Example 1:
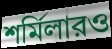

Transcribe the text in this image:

শর্মিলারও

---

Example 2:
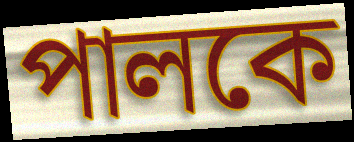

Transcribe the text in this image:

পালকে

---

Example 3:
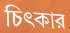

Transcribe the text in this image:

চিৎকার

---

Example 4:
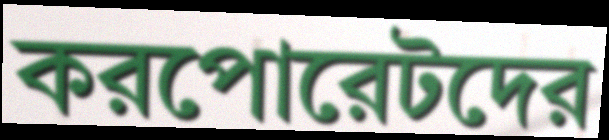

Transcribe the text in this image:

করপোরেটদের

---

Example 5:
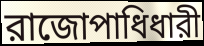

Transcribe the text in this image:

রাজোপাধিধারী